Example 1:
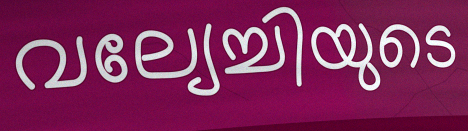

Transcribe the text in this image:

വല്യേച്ചിയുടെ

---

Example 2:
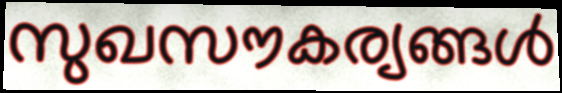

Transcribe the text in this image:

സുഖസൗകര്യങ്ങൾ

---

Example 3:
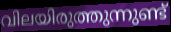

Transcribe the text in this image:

വിലയിരുത്തുന്നുണ്ട്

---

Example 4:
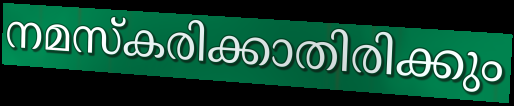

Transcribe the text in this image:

നമസ്കരിക്കാതിരിക്കും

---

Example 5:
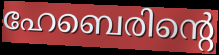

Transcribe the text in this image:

ഹേബെരിന്റെ